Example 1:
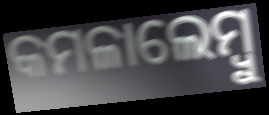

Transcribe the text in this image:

କମଳାଲେମ୍ୱୁ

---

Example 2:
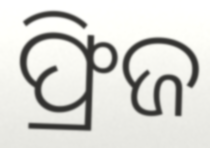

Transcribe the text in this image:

ଫ୍ରିଜ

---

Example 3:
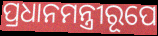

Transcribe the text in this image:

ପ୍ରଧାନମନ୍ତ୍ରୀରୂପେ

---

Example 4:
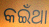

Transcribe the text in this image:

କଇଁଥା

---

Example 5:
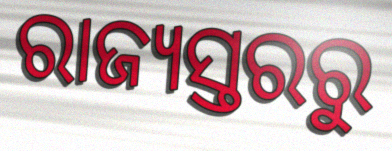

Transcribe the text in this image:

ରାଜ୍ୟସ୍ତରରୁ